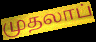
முதலாப்